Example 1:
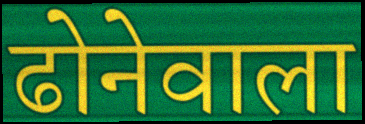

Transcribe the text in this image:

ढोनेवाला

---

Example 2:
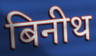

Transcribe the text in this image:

बिनीथ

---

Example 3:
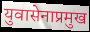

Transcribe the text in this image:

युवासेनाप्रमुख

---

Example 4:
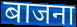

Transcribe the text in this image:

बाजना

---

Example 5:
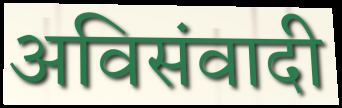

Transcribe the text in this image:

अविसंवादी